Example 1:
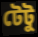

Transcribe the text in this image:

টেটু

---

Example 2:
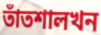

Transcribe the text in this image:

তাঁতশালখন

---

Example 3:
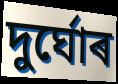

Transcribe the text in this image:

দুৰ্ঘোৰ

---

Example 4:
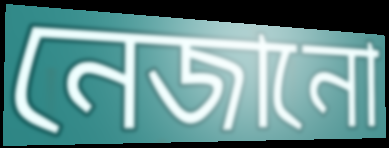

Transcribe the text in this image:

নেজানো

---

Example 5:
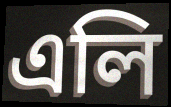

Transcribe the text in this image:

এলি